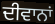
ਦੀਵਾਨਾਂ